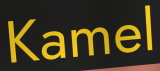
Kamel